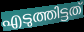
എടുത്തിട്ടത്